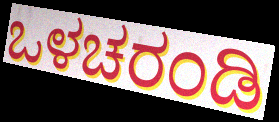
ಒಳಚರಂಡಿ